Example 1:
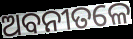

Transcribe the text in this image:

ଅବନୀତଳେ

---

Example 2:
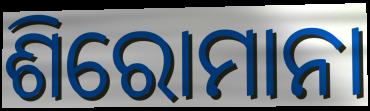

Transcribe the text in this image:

ଶିରୋମାନା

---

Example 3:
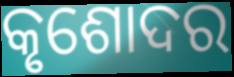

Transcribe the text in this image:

କୃଶୋଦର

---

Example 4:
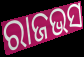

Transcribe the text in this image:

ରାଜଭସ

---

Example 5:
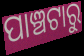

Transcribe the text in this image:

ପାଞ୍ଚଟାରୁ